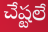
చేష్టలే